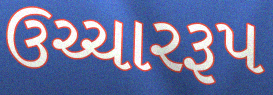
ઉચ્ચારરૂપ